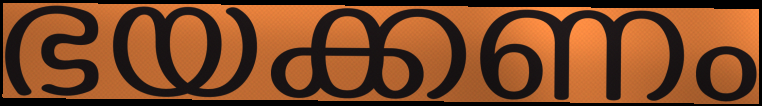
ഭയക്കണം